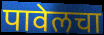
पावेलचा